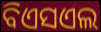
ବିଏସଏଲ